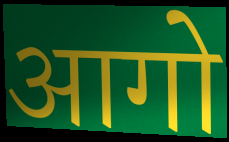
आगो